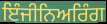
ਇੰਜੀਨਿਅਰਿੰਗ